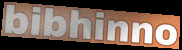
bibhinno